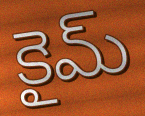
కైమ్